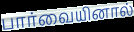
பார்வையினால்